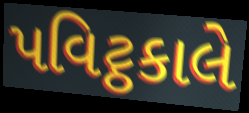
પવિટ્ઠકાલે